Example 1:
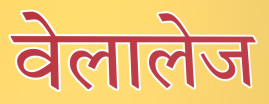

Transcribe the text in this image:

वेलालेज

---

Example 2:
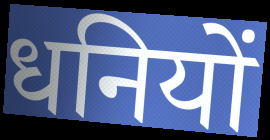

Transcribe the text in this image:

धनियों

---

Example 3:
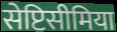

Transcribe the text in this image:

सेप्टिसीमिया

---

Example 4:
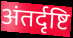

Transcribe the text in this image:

अंतर्दृष्टि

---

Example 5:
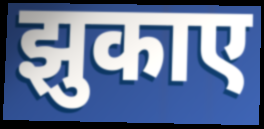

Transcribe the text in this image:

झुकाए